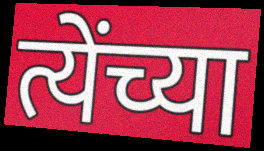
त्येंच्या